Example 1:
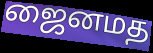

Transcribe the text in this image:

ஜைனமத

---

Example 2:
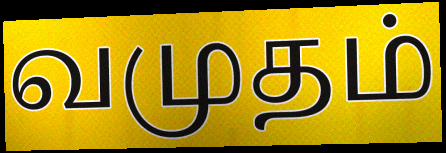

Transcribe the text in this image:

வமுதம்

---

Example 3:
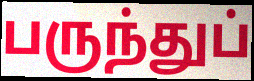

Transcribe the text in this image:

பருந்துப்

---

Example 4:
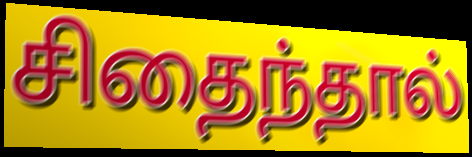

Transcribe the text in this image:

சிதைந்தால்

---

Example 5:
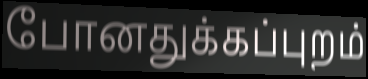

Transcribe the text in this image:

போனதுக்கப்புறம்